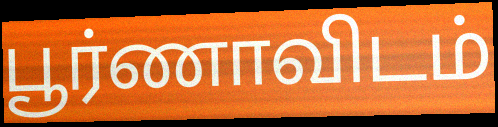
பூர்ணாவிடம்